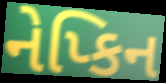
નેપ્કિન